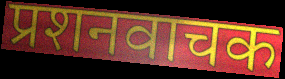
प्रशनवाचक